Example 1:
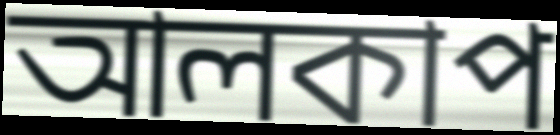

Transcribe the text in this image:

আলকাপ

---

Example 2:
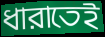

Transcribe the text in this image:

ধারাতেই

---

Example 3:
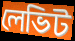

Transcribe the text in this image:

লেভিট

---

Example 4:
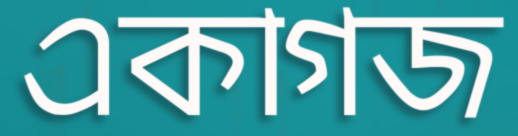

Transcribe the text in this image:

একাগজ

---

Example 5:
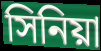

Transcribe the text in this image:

সিনিয়া